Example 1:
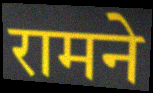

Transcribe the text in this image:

रामने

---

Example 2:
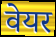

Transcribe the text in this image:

वेयर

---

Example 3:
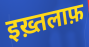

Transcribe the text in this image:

इख़्तलाफ़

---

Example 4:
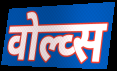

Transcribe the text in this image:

वोल्व्स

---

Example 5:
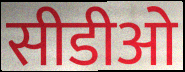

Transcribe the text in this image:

सीडीओ